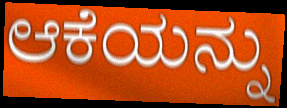
ಆಕೆಯನ್ನು